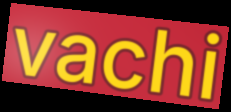
vachi